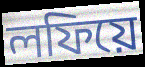
লফিয়ে